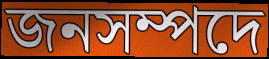
জনসম্পদে